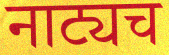
नाट्यच